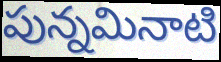
పున్నమినాటి